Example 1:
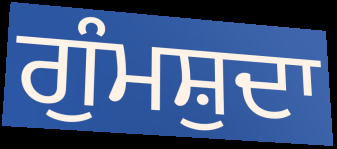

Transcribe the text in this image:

ਗੁੰਮਸ਼ੁਦਾ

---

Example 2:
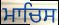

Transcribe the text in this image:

ਮਾਚਿਸ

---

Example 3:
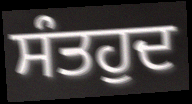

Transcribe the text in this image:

ਸੰਤਹੁਦ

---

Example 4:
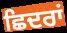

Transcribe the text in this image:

ਛਿਦਰਾਂ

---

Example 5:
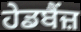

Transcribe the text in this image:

ਹੇਡਬੈਂਜ਼